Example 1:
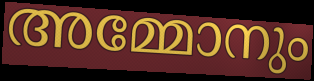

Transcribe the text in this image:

അമ്മോനും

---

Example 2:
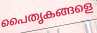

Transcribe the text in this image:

പൈതൃകങ്ങളെ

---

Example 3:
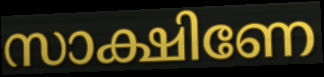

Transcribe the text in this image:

സാക്ഷിണേ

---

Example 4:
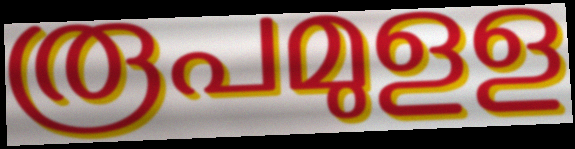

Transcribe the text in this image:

രൂപമുളള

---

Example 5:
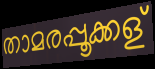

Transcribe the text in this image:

താമരപ്പൂക്കള്